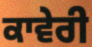
ਕਾਵੇਰੀ